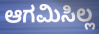
ಆಗಮಿಸಿಲ್ಲ